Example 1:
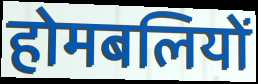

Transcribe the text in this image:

होमबलियों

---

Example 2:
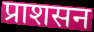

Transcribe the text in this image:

प्राशसन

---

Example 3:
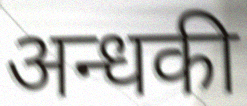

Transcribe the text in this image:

अन्धकी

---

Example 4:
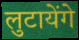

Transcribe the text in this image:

लुटायेंगे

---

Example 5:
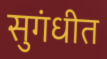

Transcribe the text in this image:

सुगंधीत